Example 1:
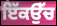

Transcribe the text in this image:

ਇੱਕਉੱਚ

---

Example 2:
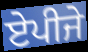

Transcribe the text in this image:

ਏਪੀਜੇ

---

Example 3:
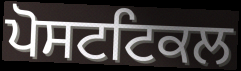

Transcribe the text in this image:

ਪੋਸਟਟਿਕਲ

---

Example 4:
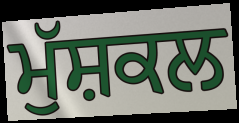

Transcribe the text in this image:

ਮੁੱਸ਼ਕਲ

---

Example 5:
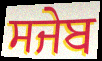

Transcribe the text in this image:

ਸਜੇਬ